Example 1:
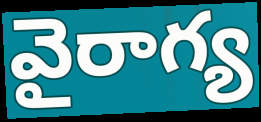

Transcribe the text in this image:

వైరాగ్య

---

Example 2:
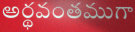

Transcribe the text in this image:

అర్థవంతముగా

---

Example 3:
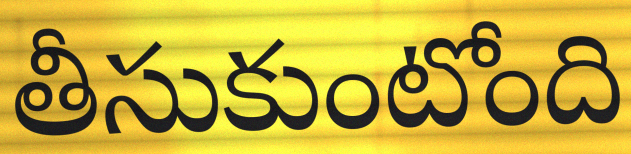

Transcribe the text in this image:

తీసుకుంటోంది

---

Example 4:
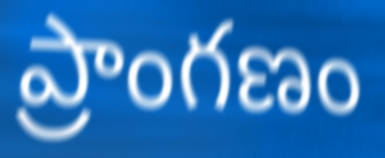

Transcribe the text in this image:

ప్రాంగణం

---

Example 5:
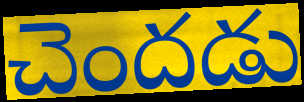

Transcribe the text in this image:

చెందడు